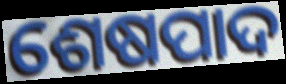
ଶେଷପାଦ